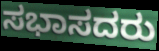
ಸಭಾಸದರು